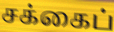
சக்கைப்